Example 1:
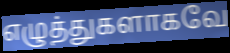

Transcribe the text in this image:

எழுத்துகளாகவே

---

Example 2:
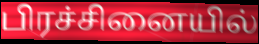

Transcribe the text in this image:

பிரச்சினையில்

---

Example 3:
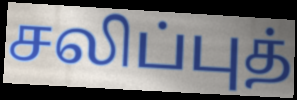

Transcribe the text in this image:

சலிப்புத்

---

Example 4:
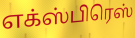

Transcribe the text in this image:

எக்ஸ்பிரெஸ்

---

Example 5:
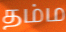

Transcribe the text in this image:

தம்ம